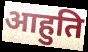
आहुति